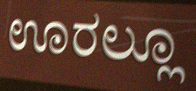
ಊರಲ್ಲೂ